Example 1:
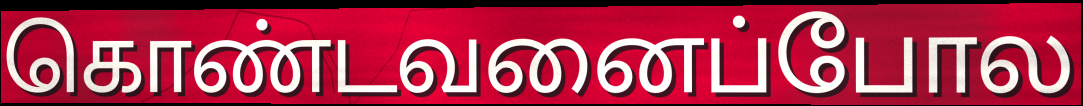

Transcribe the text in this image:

கொண்டவனைப்போல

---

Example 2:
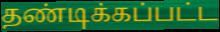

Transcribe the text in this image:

தண்டிக்கப்பட்ட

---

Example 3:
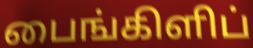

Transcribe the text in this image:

பைங்கிளிப்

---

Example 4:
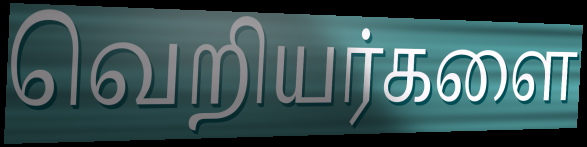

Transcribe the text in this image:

வெறியர்களை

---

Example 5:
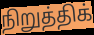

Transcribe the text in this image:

நிறுத்திக்